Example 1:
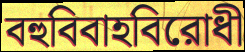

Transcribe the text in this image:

বহুবিবাহবিরোধী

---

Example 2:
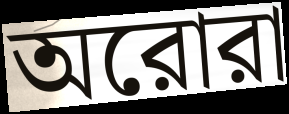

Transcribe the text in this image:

অরোরা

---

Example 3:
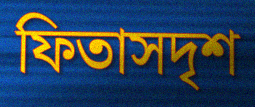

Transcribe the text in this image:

ফিতাসদৃশ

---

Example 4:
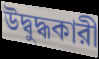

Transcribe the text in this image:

উদ্বুদ্ধকারী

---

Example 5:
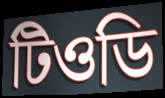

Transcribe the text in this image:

টিওডি